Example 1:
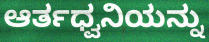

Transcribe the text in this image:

ಆರ್ತಧ್ವನಿಯನ್ನು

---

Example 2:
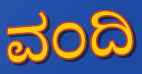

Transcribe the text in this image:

ವಂದಿ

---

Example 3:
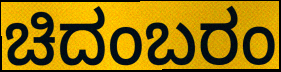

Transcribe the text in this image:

ಚಿದಂಬರಂ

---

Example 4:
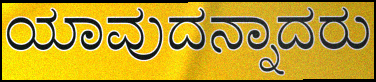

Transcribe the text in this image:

ಯಾವುದನ್ನಾದರು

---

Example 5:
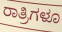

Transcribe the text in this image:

ರಾತ್ರಿಗಳೂ